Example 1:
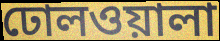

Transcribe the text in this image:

ঢোলওয়ালা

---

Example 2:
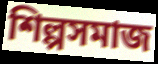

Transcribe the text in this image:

শিল্পসমাজ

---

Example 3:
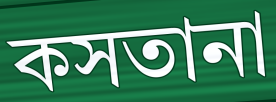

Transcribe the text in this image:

কসতানা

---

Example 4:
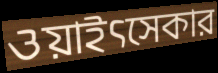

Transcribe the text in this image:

ওয়াইৎসেকার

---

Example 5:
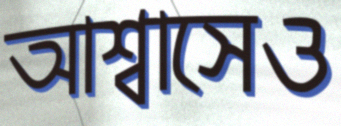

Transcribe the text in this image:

আশ্বাসেও